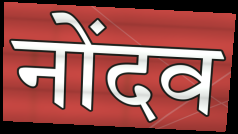
नोंदव